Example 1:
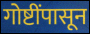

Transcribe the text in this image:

गोष्टींपासून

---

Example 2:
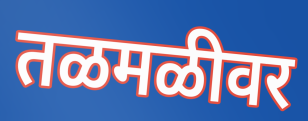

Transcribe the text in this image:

तळमळीवर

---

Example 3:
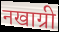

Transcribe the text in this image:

नखाग्री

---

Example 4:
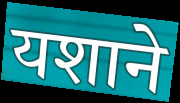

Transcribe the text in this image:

यशाने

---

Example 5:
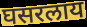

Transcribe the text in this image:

घसरलाय